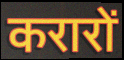
करारों